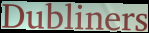
Dubliners